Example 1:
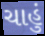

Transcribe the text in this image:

ચાહું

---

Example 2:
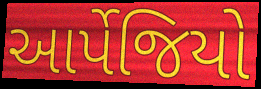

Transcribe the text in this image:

આર્પેજિયો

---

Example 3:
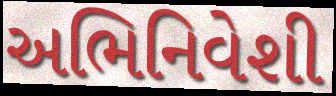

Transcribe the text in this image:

અભિનિવેશી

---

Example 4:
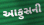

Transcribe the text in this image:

આફુસની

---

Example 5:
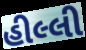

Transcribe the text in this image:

હીલ્લી